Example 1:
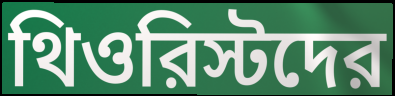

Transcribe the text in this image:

থিওরিস্টদের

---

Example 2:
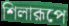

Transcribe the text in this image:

শিলারূপে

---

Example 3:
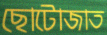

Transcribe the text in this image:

ছোটোজাত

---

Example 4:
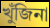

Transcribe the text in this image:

খুঁজিনা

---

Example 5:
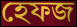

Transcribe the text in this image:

হেফজ